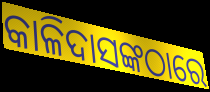
କାଳିଦାସଙ୍କଠାରେ